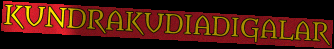
KUNDRAKUDIADIGALAR